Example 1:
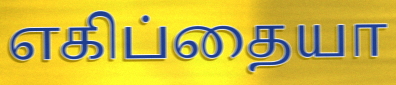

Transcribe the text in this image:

எகிப்தையா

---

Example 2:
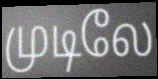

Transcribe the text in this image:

முடிலே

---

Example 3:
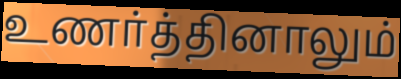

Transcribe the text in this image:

உணர்த்தினாலும்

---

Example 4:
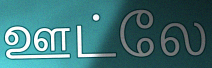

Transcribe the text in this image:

ஊட்லே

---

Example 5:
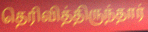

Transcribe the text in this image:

தெரிவித்திருந்தார்